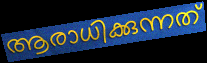
ആരാധിക്കുന്നത്